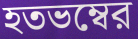
হতভম্বের